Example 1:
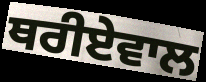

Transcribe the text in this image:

ਥਰੀਏਵਾਲ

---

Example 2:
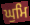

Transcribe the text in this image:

ਘੁਮਿ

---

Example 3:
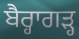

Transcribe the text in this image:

ਬੈਰ੍ਹਾਗੜ੍ਹ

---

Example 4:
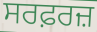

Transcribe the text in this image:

ਸਰਫ਼ਰਜ਼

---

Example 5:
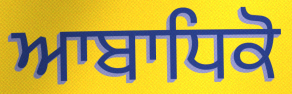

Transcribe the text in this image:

ਆਬਾਧਿਕੋ